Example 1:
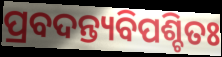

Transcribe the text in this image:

ପ୍ରବଦନ୍ତ୍ୟବିପଶ୍ଚିତଃ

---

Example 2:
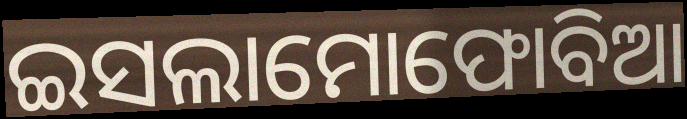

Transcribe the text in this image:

ଇସଲାମୋଫୋବିଆ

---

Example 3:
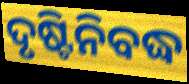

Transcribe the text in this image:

ଦୃଷ୍ଟିନିବଦ୍ଧ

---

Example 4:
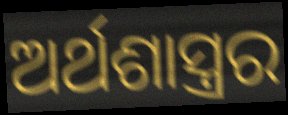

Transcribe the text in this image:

ଅର୍ଥଶାସ୍ତ୍ରର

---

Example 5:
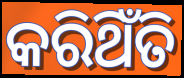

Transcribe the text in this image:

କରିଥିଁତି